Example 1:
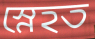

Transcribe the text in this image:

স্নেহত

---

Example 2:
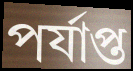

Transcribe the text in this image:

পৰ্যাপ্ত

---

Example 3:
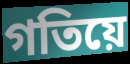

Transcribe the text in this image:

গতিয়ে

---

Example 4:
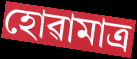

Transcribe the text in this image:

হোৱামাত্ৰ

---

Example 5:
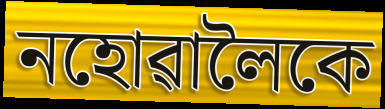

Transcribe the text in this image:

নহোৱালৈকে